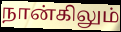
நான்கிலும்